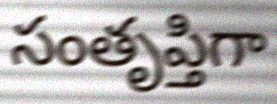
సంతృప్తిగా